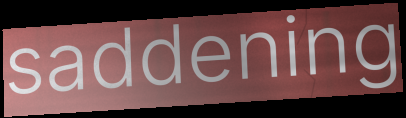
saddening